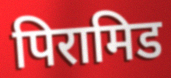
पिरामिड